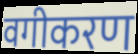
वगीकरण